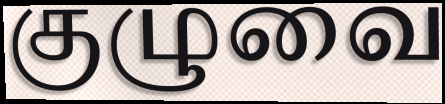
குழுவை